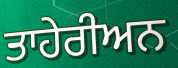
ਤਾਹੇਰੀਅਨ